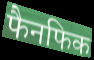
फैनफिक